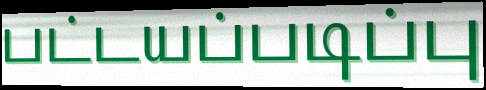
பட்டயப்படிப்பு